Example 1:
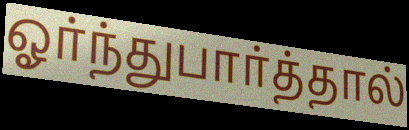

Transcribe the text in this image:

ஓர்ந்துபார்த்தால்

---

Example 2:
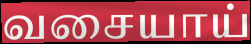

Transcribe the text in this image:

வசையாய்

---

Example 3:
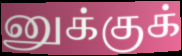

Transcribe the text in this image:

னுக்குக்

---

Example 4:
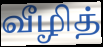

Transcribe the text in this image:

வீழித்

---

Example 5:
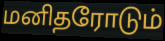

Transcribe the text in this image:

மனிதரோடும்